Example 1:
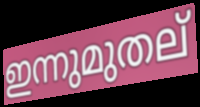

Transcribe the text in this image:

ഇന്നുമുതല്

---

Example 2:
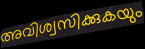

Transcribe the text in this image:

അവിശ്വസിക്കുകയും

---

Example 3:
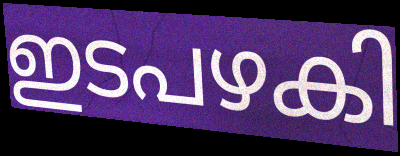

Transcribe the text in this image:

ഇടപഴകി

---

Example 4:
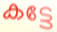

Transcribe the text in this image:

കട്ടേ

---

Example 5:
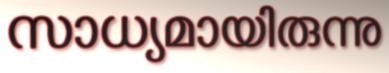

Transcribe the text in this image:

സാധ്യമായിരുന്നു